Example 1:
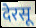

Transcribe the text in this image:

देरसू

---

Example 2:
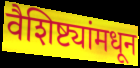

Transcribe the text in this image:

वैशिष्ट्यांमधून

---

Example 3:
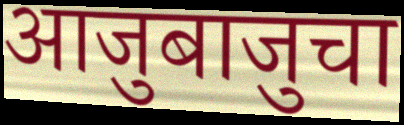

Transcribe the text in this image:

आजुबाजुचा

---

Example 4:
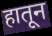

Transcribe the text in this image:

हातून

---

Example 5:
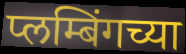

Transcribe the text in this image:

प्लम्बिंगच्या